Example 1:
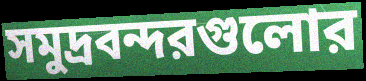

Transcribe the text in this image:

সমুদ্রবন্দরগুলোর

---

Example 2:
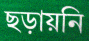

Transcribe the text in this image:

ছড়ায়নি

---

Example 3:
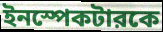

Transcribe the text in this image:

ইনস্পেকটারকে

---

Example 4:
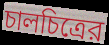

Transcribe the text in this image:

চালচিত্রের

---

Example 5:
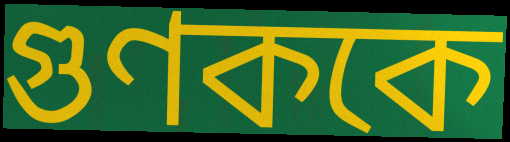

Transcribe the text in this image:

গুণককে